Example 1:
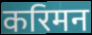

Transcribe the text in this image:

करिमन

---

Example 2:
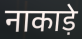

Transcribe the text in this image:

नाकाड़े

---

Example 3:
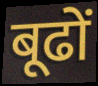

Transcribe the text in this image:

बूढों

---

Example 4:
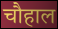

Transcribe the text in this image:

चौहाल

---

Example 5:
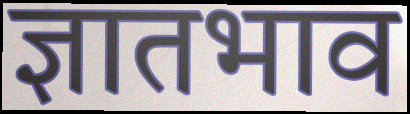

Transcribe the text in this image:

ज्ञातभाव